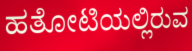
ಹತೋಟಿಯಲ್ಲಿರುವ